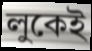
লুকেই